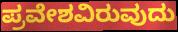
ಪ್ರವೇಶವಿರುವುದು